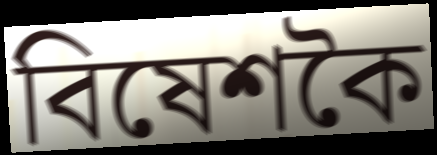
বিষেশকৈ